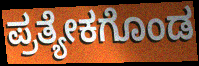
ಪ್ರತ್ಯೇಕಗೊಂಡ